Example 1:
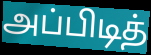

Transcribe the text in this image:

அப்பிடித்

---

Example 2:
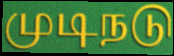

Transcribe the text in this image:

முடிநடு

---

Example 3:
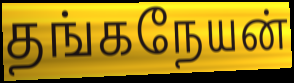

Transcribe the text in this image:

தங்கநேயன்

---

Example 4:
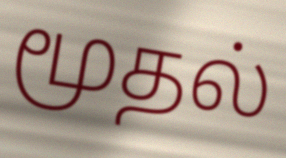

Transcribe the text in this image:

மூதல்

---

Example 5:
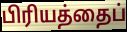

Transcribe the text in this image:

பிரியத்தைப்